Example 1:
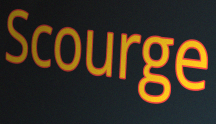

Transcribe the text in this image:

Scourge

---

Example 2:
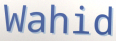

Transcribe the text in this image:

Wahid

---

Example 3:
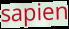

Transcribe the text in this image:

sapien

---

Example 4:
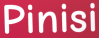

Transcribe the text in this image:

Pinisi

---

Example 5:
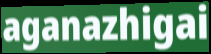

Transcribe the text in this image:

aganazhigai